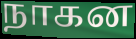
நாகன